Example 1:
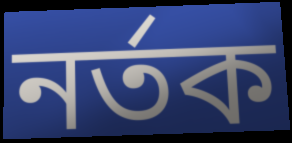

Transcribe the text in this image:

নৰ্তক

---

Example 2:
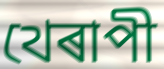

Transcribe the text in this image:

থেৰাপী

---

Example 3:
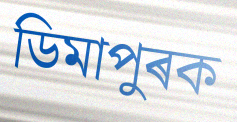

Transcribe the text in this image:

ডিমাপুৰক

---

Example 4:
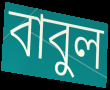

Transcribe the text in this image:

বাবুল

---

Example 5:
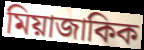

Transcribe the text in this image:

মিয়াজাকিক